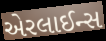
એરલાઈન્સ